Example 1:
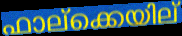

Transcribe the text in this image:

ഫാല്ക്കെയില്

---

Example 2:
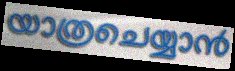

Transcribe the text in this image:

യാത്രചെയ്യാൻ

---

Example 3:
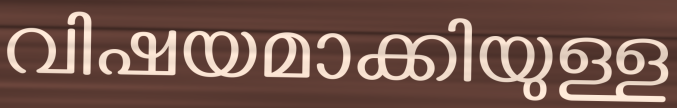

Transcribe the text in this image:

വിഷയമാക്കിയുള്ള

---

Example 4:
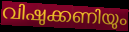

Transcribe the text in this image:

വിഷുക്കണിയും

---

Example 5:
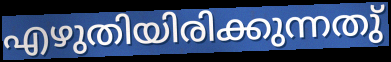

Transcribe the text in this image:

എഴുതിയിരിക്കുന്നതു്